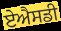
ਏਐਸਡੀ